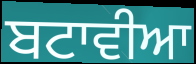
ਬਟਾਵੀਆ